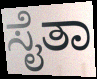
ಸೈತಾ